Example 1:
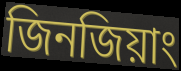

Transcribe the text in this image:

জিনজিয়াং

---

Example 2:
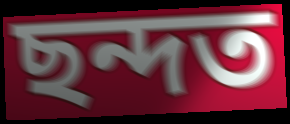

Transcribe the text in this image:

ছন্দত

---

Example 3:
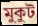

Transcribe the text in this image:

মুকুট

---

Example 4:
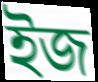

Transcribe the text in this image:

ইজ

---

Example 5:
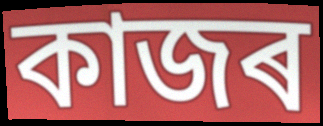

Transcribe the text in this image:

কাজৰ